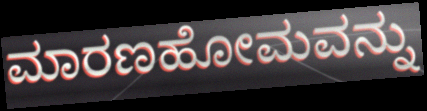
ಮಾರಣಹೋಮವನ್ನು